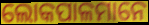
ଲୋକପାଳମାନେ